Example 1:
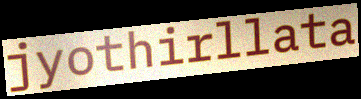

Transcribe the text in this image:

jyothirllata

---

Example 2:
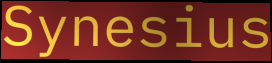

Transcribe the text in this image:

Synesius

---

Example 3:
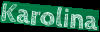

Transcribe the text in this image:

Karolina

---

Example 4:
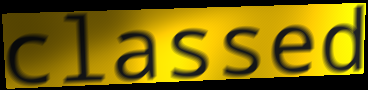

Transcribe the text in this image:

classed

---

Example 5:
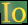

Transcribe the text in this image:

Io